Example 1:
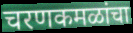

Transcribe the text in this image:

चरणकमळांचा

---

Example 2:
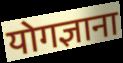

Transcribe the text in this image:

योगज्ञाना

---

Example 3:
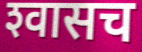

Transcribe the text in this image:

श्‍वासच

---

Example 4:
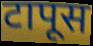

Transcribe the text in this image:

टापूस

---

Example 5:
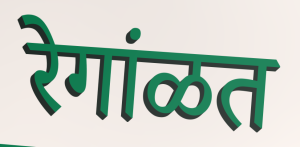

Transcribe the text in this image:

रेगांळत